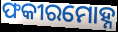
ଫକୀରମୋହ୍ନ